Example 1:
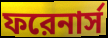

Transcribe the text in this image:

ফরেনার্স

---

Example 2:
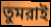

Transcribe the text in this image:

তুমরাই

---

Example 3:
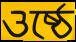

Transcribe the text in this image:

ওষ্ঠে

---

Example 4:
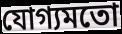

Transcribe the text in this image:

যোগ্যমতো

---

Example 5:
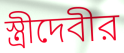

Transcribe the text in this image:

স্ত্রীদেবীর